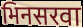
भिनसरवा